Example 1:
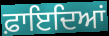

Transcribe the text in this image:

ਫ਼ਾਇਦਿਆਂ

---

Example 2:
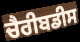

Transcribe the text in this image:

ਚੈਰੀਬਡੀਸ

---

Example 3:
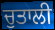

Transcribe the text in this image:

ਚੁਤਾਲੀ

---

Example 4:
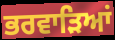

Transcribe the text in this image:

ਭਰਵਾੜਿਆਂ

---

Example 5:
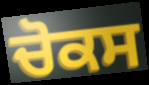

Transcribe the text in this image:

ਚੋਕਸ